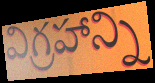
విగ్రహాన్ని